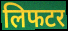
लिफटर